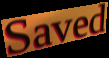
Saved